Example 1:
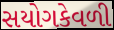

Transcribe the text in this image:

સયોગકેવળી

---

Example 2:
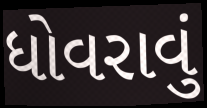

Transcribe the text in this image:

ધોવરાવું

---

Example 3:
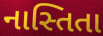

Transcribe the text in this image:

નાસ્તિતા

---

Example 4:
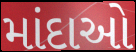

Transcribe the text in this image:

માંદાઓ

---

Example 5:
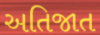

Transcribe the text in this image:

અતિજાત